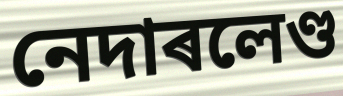
নেদাৰলেণ্ড